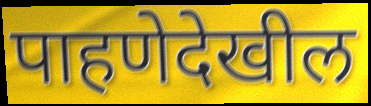
पाहणेदेखील